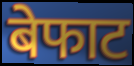
बेफाट